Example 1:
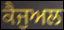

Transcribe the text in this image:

ਕੈਜੁਅਲ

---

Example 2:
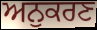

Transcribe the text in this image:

ਅਨੁਕਰਣ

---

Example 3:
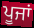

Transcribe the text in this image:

ਪੂਜਾਂ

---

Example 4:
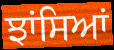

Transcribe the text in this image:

ਝਾਂਸਿਆਂ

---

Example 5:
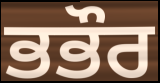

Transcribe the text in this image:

ਭਭੌਰ